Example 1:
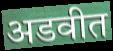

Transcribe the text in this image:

अडवीत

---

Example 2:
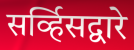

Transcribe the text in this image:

सर्व्हिसद्वारे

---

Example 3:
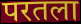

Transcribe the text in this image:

परतला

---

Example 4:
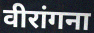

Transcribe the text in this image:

वीरांगना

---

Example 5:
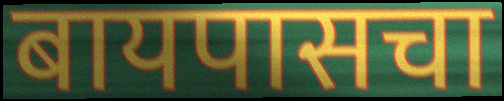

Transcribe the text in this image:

बायपासचा